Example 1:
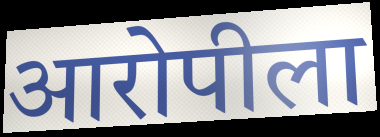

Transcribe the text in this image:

आरोपीला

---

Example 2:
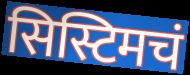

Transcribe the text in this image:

सिस्टिमचं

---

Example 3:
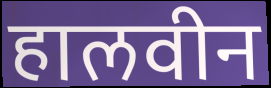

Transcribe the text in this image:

हालवीन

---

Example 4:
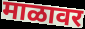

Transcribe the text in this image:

माळावर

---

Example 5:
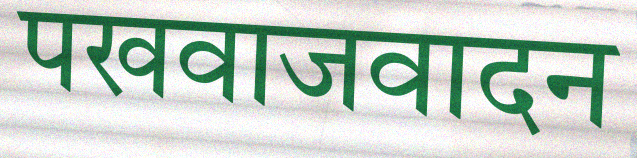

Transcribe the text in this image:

पखवाजवादन